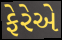
ફેરેએ